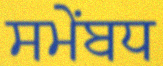
ਸਮੇਂਬਧ